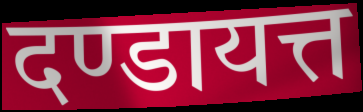
दण्डायत्त